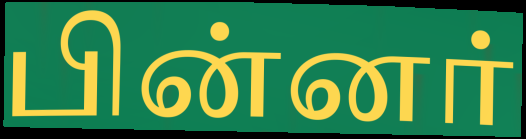
பின்னர்